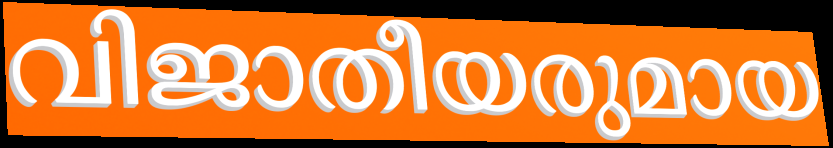
വിജാതീയരുമായ